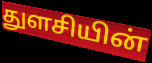
துளசியின்